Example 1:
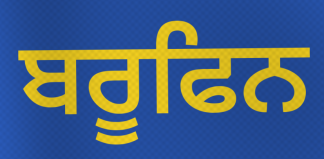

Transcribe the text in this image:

ਬਰੂਫਿਨ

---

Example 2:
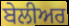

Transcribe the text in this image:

ਬੇਲੀਅਰ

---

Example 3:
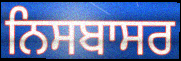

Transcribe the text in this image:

ਨਿਸਬਾਸਰ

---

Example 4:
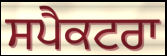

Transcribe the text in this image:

ਸਪੈਕਟਰਾ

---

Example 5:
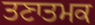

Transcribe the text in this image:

ਤਣਾਤਮਕ